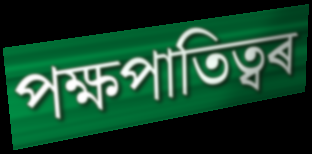
পক্ষপাতিত্বৰ